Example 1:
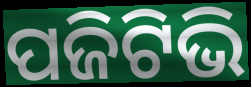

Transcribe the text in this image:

ପଜିଟିଭି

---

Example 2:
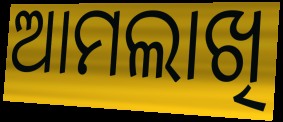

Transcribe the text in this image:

ଆମଲାଖି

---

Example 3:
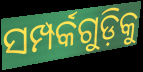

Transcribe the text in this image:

ସମ୍ପର୍କଗୁଡ଼ିକୁ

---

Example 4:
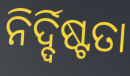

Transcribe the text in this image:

ନିର୍ଦ୍ଦିଷ୍ଟତା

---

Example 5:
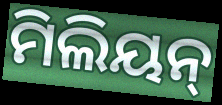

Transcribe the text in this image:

ମିଲିୟନ୍